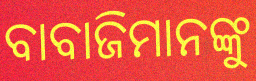
ବାବାଜିମାନଙ୍କୁ